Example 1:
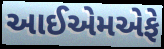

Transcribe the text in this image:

આઈએમએફે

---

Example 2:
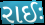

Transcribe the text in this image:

રાઈઃ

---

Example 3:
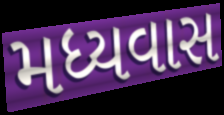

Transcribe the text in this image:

મધ્યવાસ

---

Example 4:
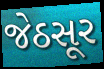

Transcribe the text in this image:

જેઠસૂર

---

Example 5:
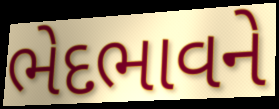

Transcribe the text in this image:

ભેદભાવને